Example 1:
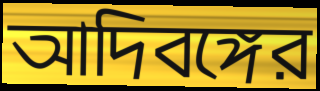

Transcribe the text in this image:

আদিবঙ্গের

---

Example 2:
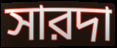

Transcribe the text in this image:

সারদা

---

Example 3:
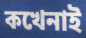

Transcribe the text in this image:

কখেনাই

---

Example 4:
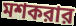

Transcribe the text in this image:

মশকরার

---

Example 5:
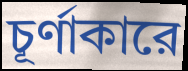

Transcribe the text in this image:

চূর্ণাকারে